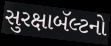
સુરક્ષાબૅલ્ટનો